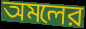
অমলের